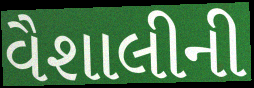
વૈશાલીની